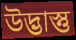
উদ্ভাস্তু